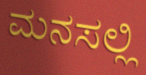
ಮನಸಲ್ಲಿ